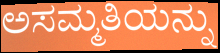
ಅಸಮ್ಮತಿಯನ್ನು